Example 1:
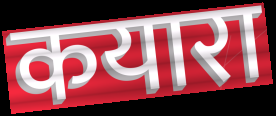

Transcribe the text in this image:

कयारा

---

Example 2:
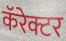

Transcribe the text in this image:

कॅरेक्टर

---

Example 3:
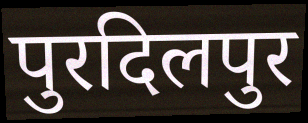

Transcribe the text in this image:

पुरदिलपुर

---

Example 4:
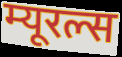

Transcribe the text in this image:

म्यूरल्स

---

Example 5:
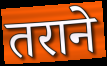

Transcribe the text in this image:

तराने